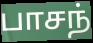
பாசந்